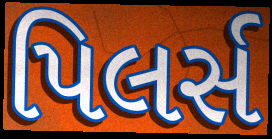
પિલર્સ